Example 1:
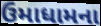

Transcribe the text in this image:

ઉમાધામના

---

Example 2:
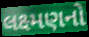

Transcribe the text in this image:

લક્ષ્મણનો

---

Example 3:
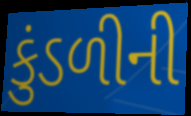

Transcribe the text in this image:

કુંડળીની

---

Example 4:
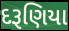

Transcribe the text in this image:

દરૂણિયા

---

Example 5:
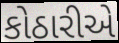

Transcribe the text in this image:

કોઠારીએ